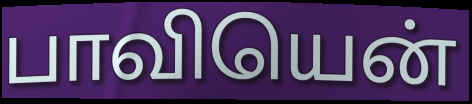
பாவியென்